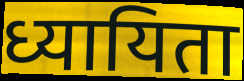
ध्यायिता